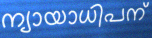
ന്യായാധിപന്